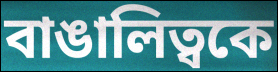
বাঙালিত্বকে